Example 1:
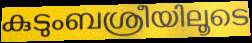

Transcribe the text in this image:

കുടുംബശ്രീയിലൂടെ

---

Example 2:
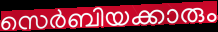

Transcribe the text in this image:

സെർബിയക്കാരും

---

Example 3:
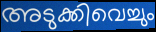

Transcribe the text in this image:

അടുക്കിവെച്ചും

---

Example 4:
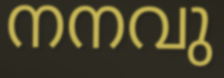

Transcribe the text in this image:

നനവു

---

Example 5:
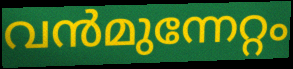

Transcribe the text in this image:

വൻമുന്നേറ്റം